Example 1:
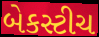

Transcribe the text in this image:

બેકસ્ટીચ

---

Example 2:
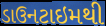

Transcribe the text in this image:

ડાઉનટાઇમથી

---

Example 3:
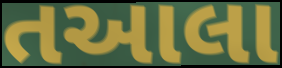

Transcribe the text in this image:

તઆલા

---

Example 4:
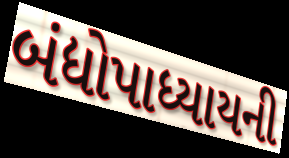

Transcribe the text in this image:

બંદ્યોપાધ્યાયની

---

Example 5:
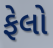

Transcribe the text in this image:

ફેલો